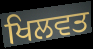
ਖਿਲਵਤ